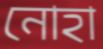
নোহা